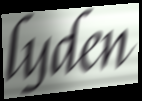
lyden